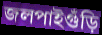
জলপাইগুঁড়ি